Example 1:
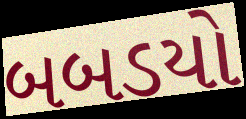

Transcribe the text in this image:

બબડયો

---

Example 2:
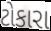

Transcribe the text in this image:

ટોકારા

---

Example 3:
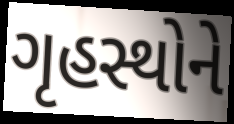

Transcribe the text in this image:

ગૃહસ્થોને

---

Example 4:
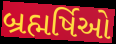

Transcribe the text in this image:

બ્રહ્મર્ષિઓ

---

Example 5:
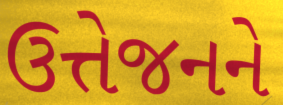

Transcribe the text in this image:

ઉત્તેજનને